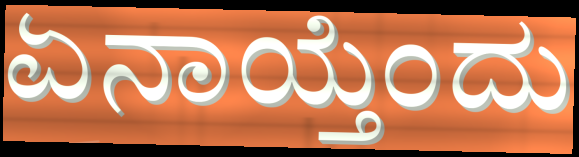
ಏನಾಯ್ತೆಂದು